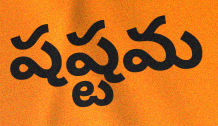
షష్టమ